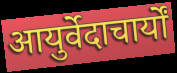
आयुर्वेदाचार्यों